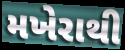
મખેરાથી